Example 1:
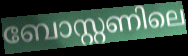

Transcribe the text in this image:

ബോസ്റ്റണിലെ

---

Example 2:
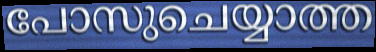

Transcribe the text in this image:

പോസുചെയ്യാത്ത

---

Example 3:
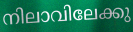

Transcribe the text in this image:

നിലാവിലേക്കു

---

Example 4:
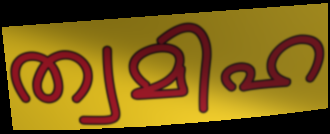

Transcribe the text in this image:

ത്വമിഹ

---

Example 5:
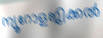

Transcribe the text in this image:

ന്യൂറോളജിക്കൽ